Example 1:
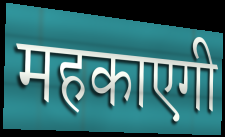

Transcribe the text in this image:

महकाएगी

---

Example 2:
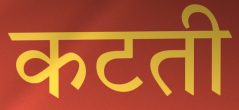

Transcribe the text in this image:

कटती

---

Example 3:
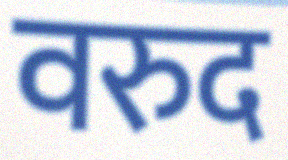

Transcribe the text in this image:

वरुद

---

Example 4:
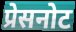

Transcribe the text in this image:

प्रेसनोट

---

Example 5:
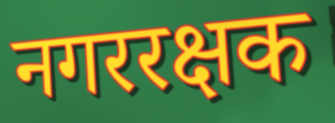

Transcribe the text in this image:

नगररक्षक